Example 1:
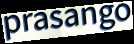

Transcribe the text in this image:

prasango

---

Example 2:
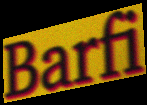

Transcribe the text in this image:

Barfi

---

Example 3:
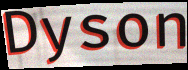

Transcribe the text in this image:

Dyson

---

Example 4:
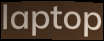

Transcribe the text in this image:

laptop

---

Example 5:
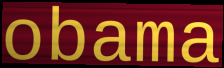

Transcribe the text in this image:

obama